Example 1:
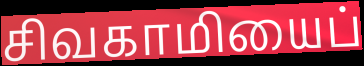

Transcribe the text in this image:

சிவகாமியைப்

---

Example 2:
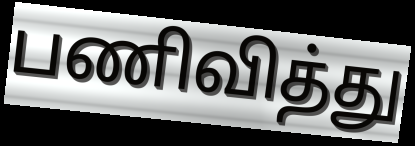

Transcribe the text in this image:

பணிவித்து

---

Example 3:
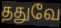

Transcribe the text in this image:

ததுவே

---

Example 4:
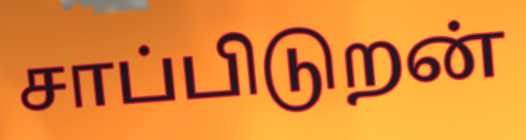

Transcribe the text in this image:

சாப்பிடுறன்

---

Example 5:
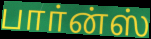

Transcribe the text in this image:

பார்ன்ஸ்